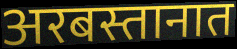
अरबस्तानात